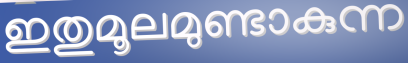
ഇതുമൂലമുണ്ടാകുന്ന